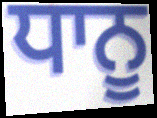
ਧਾਨੂ